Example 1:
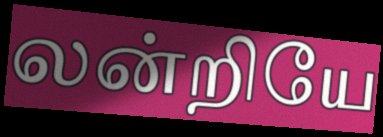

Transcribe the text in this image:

லன்றியே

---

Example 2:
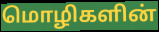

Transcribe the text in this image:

மொழிகளின்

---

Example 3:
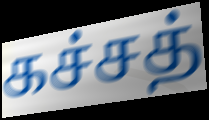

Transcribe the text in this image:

கச்சத்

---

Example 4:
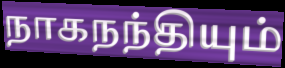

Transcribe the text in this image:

நாகநந்தியும்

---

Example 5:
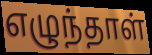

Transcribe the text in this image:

எழுந்தாள்